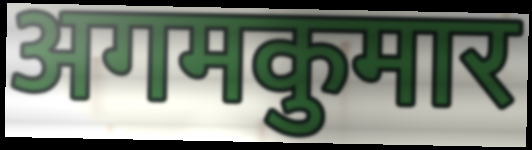
अगमकुमार